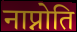
नाप्नोति